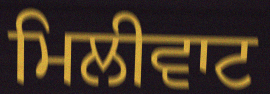
ਮਿਲੀਵਾਟ